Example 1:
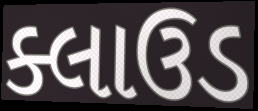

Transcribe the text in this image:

ક્લાઉડ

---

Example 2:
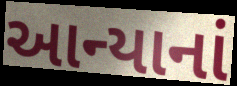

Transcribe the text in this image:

આન્યાનાં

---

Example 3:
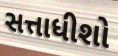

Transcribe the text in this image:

સત્તાધીશો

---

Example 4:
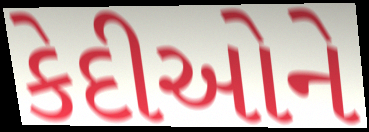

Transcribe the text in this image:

કેદીઓને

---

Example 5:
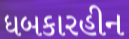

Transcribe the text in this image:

ધબકારહીન